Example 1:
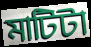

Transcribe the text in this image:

মাটিটা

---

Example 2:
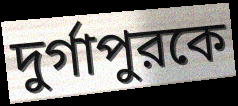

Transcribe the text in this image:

দুর্গাপুরকে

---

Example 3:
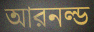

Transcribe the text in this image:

আরনল্ড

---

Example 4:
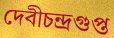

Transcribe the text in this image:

দেবীচন্দ্রগুপ্ত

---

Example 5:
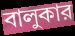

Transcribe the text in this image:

বালুকার